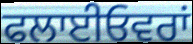
ਫਲਾਈਓਵਰਾਂ